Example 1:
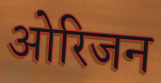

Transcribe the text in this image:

ओरिजन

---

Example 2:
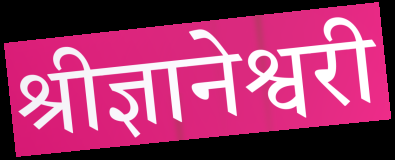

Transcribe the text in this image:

श्रीज्ञानेश्वरी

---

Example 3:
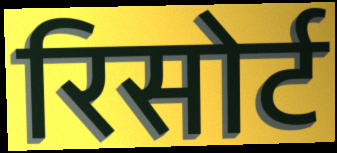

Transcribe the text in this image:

रिसोर्ट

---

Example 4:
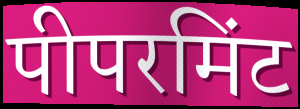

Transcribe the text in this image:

पीपरमिंट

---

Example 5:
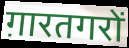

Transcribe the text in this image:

ग़ारतगरों